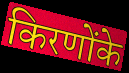
किरणोंके